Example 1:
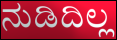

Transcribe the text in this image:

ನುಡಿದಿಲ್ಲ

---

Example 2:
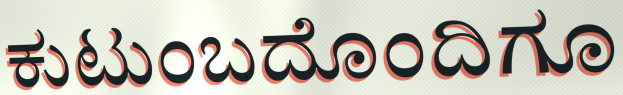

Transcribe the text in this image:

ಕುಟುಂಬದೊಂದಿಗೂ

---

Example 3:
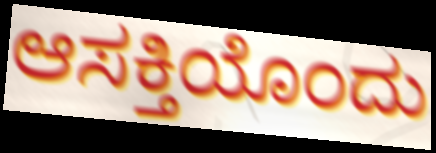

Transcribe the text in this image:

ಆಸಕ್ತಿಯೊಂದು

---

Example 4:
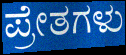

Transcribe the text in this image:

ಪ್ರೇತಗಳು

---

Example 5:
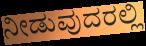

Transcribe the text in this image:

ನೀಡುವುದರಲ್ಲಿ